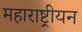
महाराष्ट्रीयन